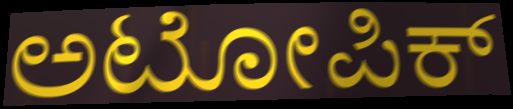
ಅಟೋಪಿಕ್